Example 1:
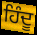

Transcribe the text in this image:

ਹਿੰਦੂ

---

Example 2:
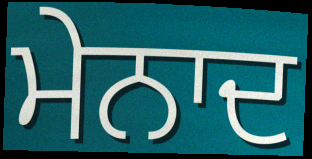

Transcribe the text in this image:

ਮੇਨਾਦ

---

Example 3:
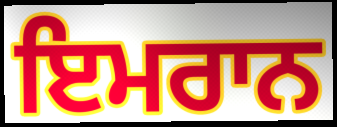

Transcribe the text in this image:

ਇਮਰਾਨ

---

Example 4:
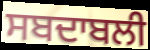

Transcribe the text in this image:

ਸਬਦਾਬਲੀ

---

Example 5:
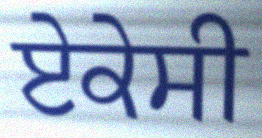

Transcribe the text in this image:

ਏਕੇਸੀ